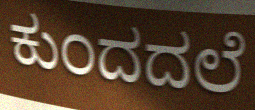
ಕುಂದದಲೆ